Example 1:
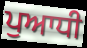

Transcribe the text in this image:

ਪੁਆਧੀ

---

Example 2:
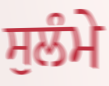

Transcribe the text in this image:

ਸੁਲੰਮੇ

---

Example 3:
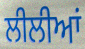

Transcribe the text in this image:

ਲੀਲੀਆਂ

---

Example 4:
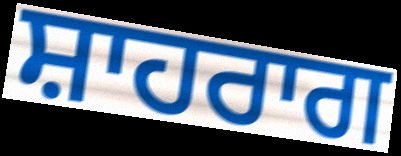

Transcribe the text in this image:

ਸ਼ਾਹਰਾਗ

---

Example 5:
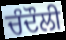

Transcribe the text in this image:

ਚੰਦੌਲੀ